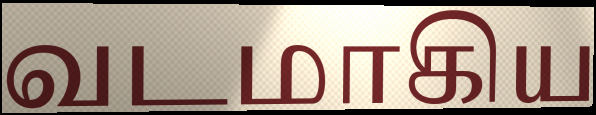
வடமாகிய